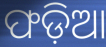
ଫଡ଼ିଆ